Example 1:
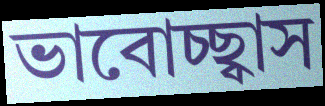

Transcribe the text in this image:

ভাবোচ্ছ্বাস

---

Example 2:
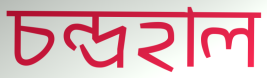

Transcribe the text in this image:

চন্দ্ৰহাল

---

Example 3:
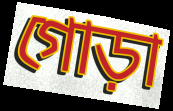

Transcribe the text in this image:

গোড়া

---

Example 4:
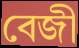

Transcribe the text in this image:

বেজী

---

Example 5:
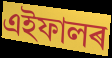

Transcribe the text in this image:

এইফালৰ